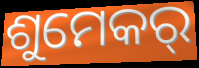
ଶୁମେକର୍